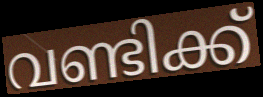
വണ്ടിക്ക്